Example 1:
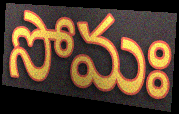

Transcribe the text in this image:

సోమః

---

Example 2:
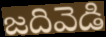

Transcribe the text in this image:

జదివెడి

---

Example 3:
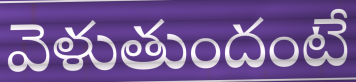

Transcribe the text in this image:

వెళుతుందంటే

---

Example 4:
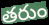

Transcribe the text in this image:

తరుం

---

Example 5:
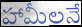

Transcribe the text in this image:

హామీలనే